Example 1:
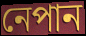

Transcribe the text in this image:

নেপান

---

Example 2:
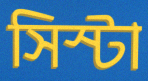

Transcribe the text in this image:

সিস্টা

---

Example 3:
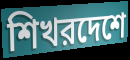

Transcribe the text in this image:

শিখরদেশে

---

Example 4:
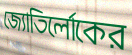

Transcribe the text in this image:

জ্যোতির্লোকের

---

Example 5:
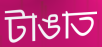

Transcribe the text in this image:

টাঙাত